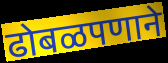
ढोबळपणाने